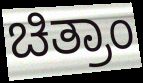
ಚಿತ್ರಾಂ